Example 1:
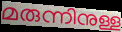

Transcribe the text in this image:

മരുന്നിനുള്ള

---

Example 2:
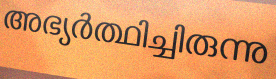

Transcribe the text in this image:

അഭ്യർത്ഥിച്ചിരുന്നു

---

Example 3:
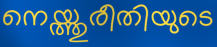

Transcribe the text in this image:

നെയ്ത്തുരീതിയുടെ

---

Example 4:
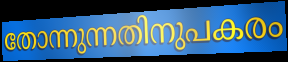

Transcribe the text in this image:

തോന്നുന്നതിനുപകരം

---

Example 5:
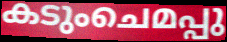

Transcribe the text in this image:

കടുംചെമപ്പു